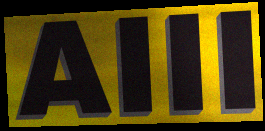
AIII